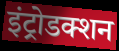
इंट्रोडक्शन